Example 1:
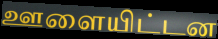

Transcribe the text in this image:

ஊளையிட்டன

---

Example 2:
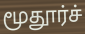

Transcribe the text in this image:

மூதூர்ச்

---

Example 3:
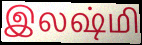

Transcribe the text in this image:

இலஷ்மி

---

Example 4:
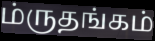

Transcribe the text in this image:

ம்ருதங்கம்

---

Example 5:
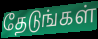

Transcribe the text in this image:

தேடுங்கள்